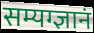
सम्यग्ज्ञानं